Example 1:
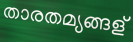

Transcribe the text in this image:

താരതമ്യങ്ങള്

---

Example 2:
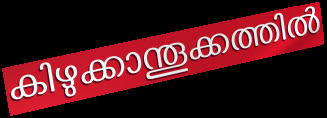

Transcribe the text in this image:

കിഴുക്കാന്തൂക്കത്തിൽ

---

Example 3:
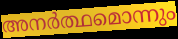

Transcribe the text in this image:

അനർത്ഥമൊന്നും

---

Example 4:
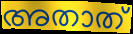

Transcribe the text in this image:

അതാത്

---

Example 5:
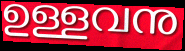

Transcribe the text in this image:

ഉള്ളവനു